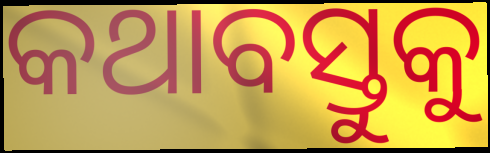
କଥାବସ୍ତୁକୁ